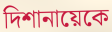
দিশানায়েকে